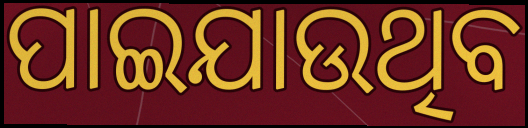
ପାଇଯାଉଥିବ